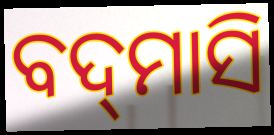
ବଦ୍‌ମାସି